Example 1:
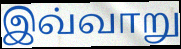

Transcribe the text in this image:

இவ்வாறு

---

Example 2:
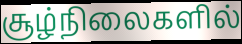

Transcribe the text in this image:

சூழ்நிலைகளில்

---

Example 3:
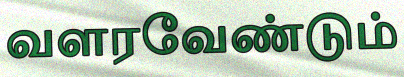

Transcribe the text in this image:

வளரவேண்டும்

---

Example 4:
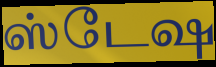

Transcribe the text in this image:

ஸ்டேஷ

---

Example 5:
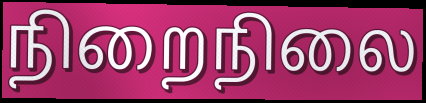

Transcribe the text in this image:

நிறைநிலை